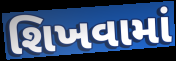
શિખવામાં